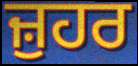
ਜ਼ੁਹਰ